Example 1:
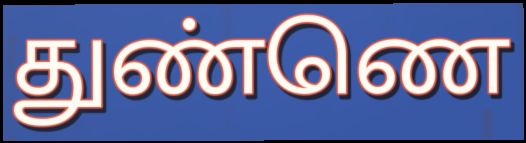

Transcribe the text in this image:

துண்ணெ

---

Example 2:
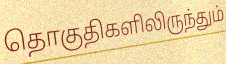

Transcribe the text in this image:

தொகுதிகளிலிருந்தும்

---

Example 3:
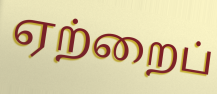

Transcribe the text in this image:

ஏற்றைப்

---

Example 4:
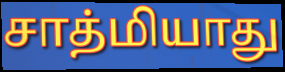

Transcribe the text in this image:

சாத்மியாது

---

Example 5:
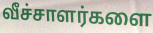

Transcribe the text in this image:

வீச்சாளர்களை